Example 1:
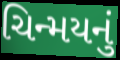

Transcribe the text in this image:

ચિન્મયનું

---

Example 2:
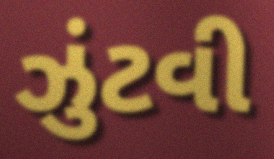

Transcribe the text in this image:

ઝુંટવી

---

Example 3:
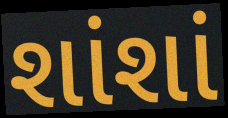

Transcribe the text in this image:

શાંશાં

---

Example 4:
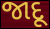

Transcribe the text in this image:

જાદૂ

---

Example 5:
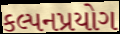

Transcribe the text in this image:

કલ્પનપ્રયોગ